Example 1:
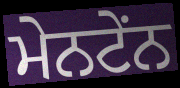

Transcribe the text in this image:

ਮੇਨਟੇਂਨ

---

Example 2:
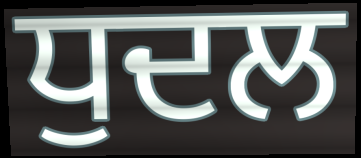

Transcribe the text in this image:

ਧੁਦਲ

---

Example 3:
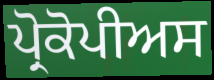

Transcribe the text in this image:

ਪ੍ਰੋਕੋਪੀਅਸ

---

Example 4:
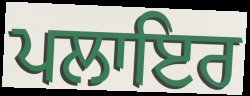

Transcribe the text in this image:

ਪਲਾਇਰ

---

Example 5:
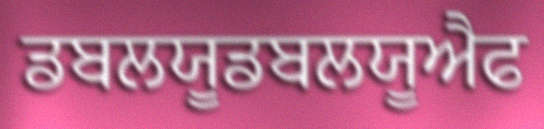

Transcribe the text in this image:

ਡਬਲਯੂਡਬਲਯੂਐਫ